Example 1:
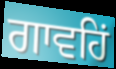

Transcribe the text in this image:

ਗਾਵਹਿਂ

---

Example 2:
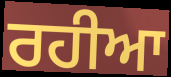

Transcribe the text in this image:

ਰਹੀਆ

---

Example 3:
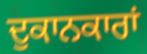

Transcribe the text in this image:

ਦੁਕਾਨਕਾਰਾਂ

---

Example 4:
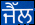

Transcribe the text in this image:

ਜੈੱਲ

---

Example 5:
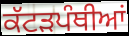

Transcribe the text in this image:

ਕੱਟੜਪੰਥੀਆਂ